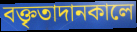
বক্তৃতাদানকালে